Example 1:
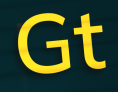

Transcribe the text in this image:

Gt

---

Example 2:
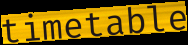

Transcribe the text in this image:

timetable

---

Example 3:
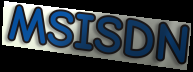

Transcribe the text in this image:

MSISDN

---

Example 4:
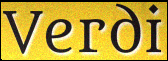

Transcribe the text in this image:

Verdi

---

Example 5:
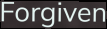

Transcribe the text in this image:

Forgiven